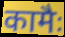
कामैः